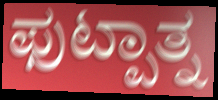
ಫುಟ್ಪಾತ್ನ